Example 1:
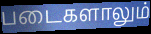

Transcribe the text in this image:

படைகளாலும்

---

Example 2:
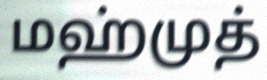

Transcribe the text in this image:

மஹ்முத்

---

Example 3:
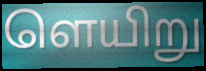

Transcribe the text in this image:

ளெயிறு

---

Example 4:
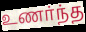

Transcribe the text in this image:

உணர்ந்த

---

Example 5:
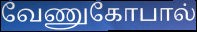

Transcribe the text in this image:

வேணுகோபால்